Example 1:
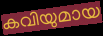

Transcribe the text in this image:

കവിയുമായ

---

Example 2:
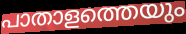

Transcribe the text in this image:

പാതാളത്തെയും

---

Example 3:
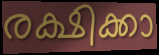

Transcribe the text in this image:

രക്ഷിക്കാ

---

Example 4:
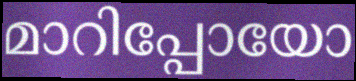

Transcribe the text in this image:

മാറിപ്പോയോ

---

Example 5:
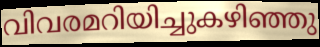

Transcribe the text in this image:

വിവരമറിയിച്ചുകഴിഞ്ഞു